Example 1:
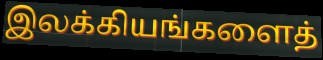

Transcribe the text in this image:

இலக்கியங்களைத்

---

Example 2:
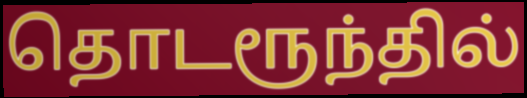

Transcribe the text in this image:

தொடரூந்தில்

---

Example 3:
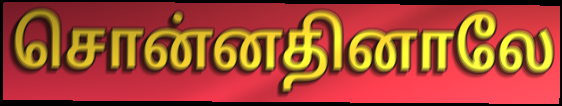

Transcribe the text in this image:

சொன்னதினாலே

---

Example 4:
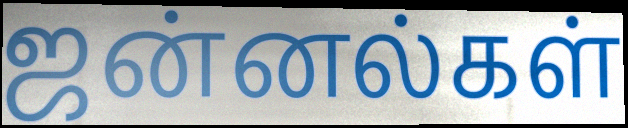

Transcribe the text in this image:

ஜன்னல்கள்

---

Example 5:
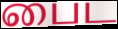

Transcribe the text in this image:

பைட